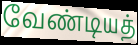
வேண்டியத்